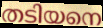
തടിയനെ